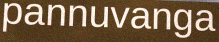
pannuvanga